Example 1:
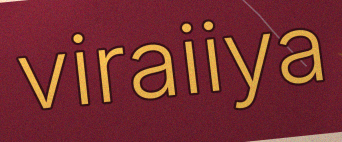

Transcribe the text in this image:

viraiiya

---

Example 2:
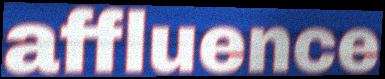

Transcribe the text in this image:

affluence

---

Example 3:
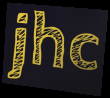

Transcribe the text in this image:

jhc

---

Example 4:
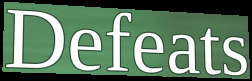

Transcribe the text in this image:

Defeats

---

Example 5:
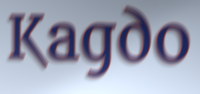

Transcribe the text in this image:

Kagdo